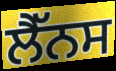
ਲੈੱਨਸ